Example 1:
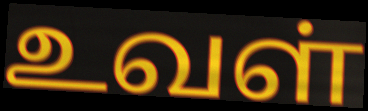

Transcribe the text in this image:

உவள்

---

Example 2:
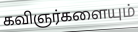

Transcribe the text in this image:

கவிஞர்களையும்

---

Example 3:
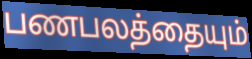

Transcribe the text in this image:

பணபலத்தையும்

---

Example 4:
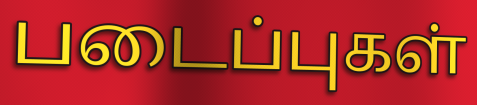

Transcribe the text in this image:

படைப்புகள்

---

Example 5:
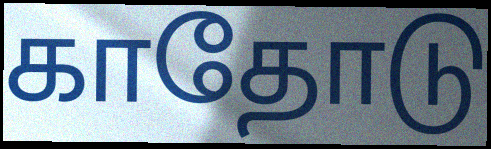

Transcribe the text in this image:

காதோடு